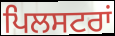
ਪਿਲਸਟਰਾਂ